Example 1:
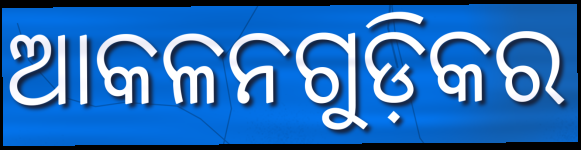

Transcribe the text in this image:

ଆକଳନଗୁଡ଼ିକର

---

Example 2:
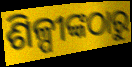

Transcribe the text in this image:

ଶିଳ୍ପୀଙ୍କଠାରୁ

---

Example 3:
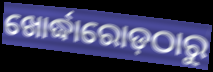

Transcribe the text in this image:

ଖୋର୍ଦ୍ଧାରୋଡ଼ଠାରୁ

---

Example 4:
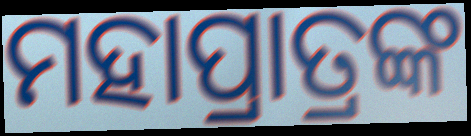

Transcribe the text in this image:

ମହାପ୍ରାତ୍ରଙ୍କ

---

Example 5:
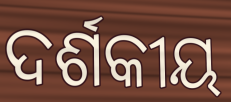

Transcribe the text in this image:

ଦର୍ଶକୀୟ